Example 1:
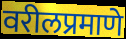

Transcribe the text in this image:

वरीलप्रमाणे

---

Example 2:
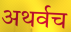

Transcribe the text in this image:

अथर्वच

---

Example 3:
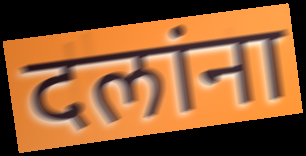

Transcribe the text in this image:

दलांना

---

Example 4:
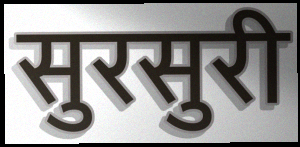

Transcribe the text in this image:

सुरसुरी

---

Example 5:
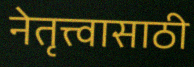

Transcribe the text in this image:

नेतृत्त्वासाठी